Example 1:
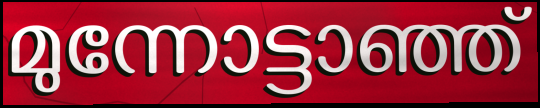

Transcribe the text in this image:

മുന്നോട്ടാഞ്ഞ്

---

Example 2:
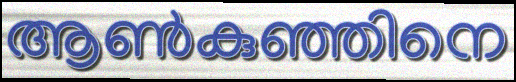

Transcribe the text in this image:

ആൺകുഞ്ഞിനെ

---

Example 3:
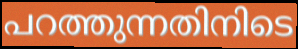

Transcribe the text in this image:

പറത്തുന്നതിനിടെ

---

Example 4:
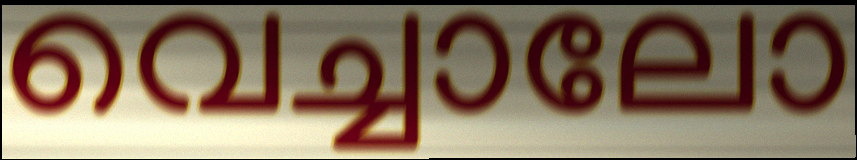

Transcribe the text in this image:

വെച്ചാലോ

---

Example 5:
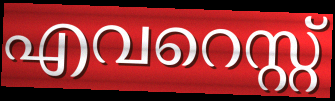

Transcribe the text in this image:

എവറെസ്റ്റ്